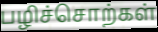
பழிச்சொற்கள்